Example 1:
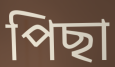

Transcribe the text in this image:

পিছা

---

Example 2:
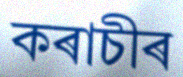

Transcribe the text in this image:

কৰাচীৰ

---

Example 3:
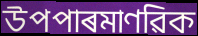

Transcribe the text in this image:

উপপাৰমাণৱিক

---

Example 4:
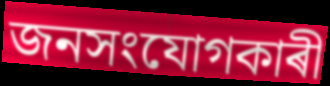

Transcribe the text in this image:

জনসংযোগকাৰী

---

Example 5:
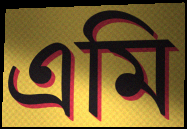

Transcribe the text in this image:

এমি